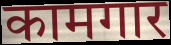
कामगार